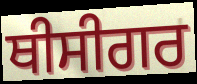
ਥੀਸੀਗਰ